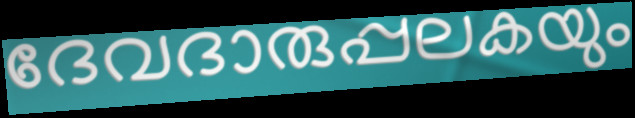
ദേവദാരുപ്പലകയും